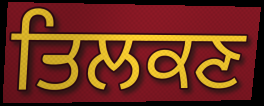
ਤਿਲਕਣ